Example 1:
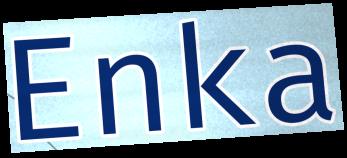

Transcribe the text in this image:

Enka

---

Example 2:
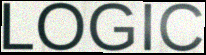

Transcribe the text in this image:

LOGIC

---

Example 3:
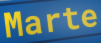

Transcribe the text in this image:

Marte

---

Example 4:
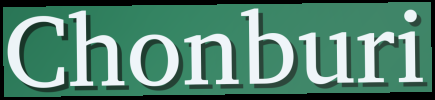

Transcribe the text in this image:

Chonburi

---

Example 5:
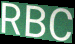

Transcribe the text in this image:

RBC